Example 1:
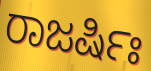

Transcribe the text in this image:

ರಾಜರ್ಷಿಃ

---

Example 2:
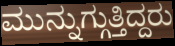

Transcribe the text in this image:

ಮುನ್ನುಗ್ಗುತ್ತಿದ್ದರು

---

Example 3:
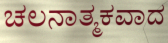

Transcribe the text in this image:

ಚಲನಾತ್ಮಕವಾದ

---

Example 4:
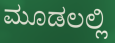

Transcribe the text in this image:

ಮೂಡಲಲ್ಲಿ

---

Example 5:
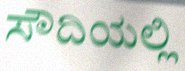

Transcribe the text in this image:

ಸೌದಿಯಲ್ಲಿ